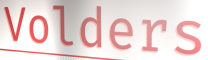
Volders